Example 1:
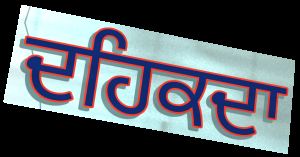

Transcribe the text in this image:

ਦਹਿਕਦਾ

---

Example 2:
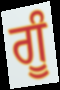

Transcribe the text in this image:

ਗੂੰ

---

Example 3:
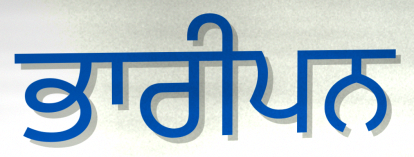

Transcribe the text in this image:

ਭਾਰੀਪਨ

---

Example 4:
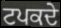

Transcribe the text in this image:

ਟਪਕਦੇ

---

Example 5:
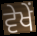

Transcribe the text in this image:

ਵੇਖੇਂ